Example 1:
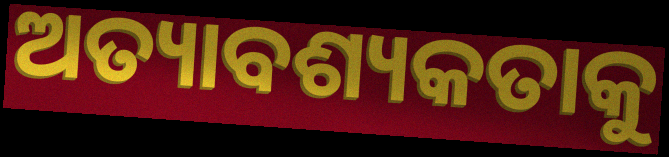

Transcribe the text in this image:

ଅତ୍ୟାବଶ୍ୟକତାକୁ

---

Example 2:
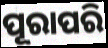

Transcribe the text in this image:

ପୂରାପରି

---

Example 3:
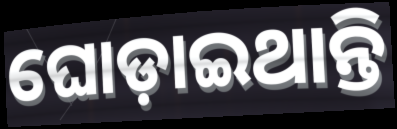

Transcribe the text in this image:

ଘୋଡ଼ାଇଥାନ୍ତି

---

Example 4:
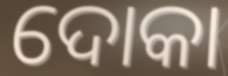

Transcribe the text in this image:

ଦୋକା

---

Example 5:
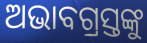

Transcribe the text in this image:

ଅଭାବଗ୍ରସ୍ତଙ୍କୁ